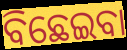
ବିଛେଇବା